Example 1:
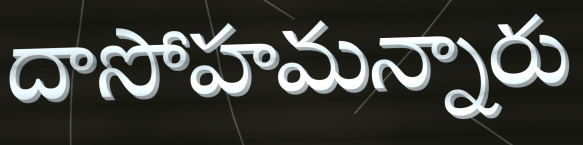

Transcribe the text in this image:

దాసోహమన్నారు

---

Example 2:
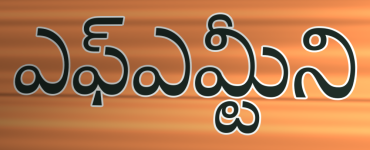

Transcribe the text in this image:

ఎఫ్ఎమ్టీని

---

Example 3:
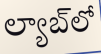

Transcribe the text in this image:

ల్యాబ్‌లో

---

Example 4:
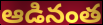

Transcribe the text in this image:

ఆడినంత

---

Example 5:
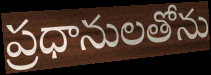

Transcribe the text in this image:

ప్రధానులతోను